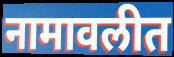
नामावलीत